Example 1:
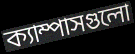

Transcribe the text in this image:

ক্যাম্পাসগুলো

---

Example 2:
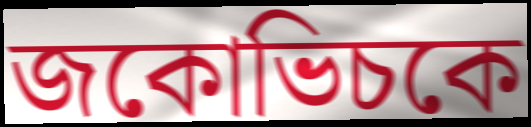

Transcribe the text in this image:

জকোভিচকে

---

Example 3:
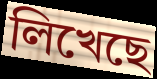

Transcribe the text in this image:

লিখেছে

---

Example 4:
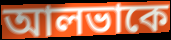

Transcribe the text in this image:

আলভাকে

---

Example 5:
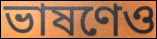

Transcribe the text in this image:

ভাষণেও